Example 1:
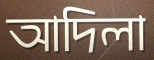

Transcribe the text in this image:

আদিলা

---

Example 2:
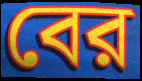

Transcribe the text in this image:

বের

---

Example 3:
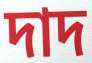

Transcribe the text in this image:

দাদ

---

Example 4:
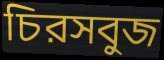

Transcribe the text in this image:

চিরসবুজ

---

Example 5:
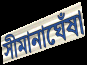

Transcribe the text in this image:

সীমানাঘেঁষা